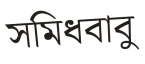
সমিধবাবু